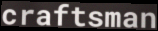
craftsman